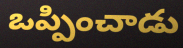
ఒప్పించాడు